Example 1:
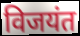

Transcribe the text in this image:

विजयंत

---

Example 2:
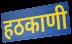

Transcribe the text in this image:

हठकाणी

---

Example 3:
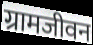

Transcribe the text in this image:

ग्रामजीवन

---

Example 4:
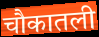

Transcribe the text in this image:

चौकातली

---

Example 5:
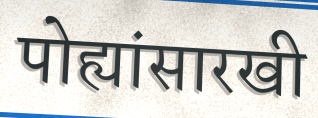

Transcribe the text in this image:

पोह्यांसारखी